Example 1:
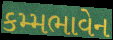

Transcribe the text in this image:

કમ્મભાવેન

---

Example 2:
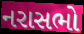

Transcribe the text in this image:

નરાસભો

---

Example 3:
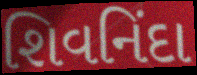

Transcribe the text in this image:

શિવનિંદા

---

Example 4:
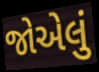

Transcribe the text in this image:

જોએલું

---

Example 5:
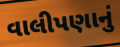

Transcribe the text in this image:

વાલીપણાનું